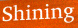
Shining